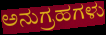
ಅನುಗ್ರಹಗಳು